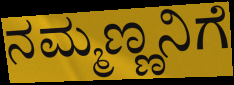
ನಮ್ಮಣ್ಣನಿಗೆ